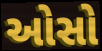
ઓસો